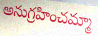
అనుగ్రహించమ్మా